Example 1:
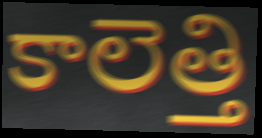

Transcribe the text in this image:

కాలెత్తి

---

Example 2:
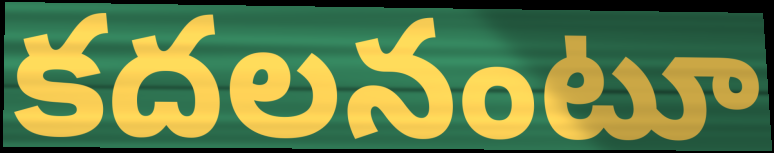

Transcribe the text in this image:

కదలనంటూ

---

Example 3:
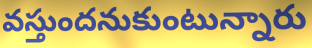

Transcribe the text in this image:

వస్తుందనుకుంటున్నారు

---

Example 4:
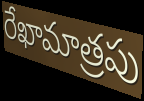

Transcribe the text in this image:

రేఖామాత్రపు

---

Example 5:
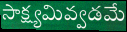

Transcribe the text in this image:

సాక్ష్యమివ్వడమే